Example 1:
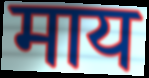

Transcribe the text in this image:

माय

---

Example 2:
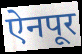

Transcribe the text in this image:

ऐनपूर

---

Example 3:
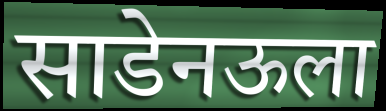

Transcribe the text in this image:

साडेनऊला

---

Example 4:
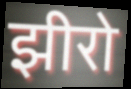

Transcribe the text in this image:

झीरो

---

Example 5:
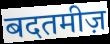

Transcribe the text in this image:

बदतमीज़